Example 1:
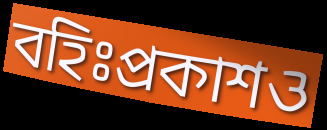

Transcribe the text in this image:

বহিঃপ্রকাশও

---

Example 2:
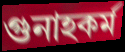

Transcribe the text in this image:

গুনাহকর্ম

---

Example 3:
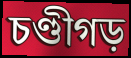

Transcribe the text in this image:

চণ্ডীগড়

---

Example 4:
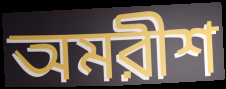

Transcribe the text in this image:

অমরীশ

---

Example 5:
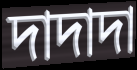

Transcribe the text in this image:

দাদাদা